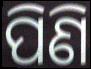
ପିଣି